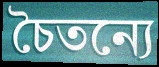
চৈতন্যে